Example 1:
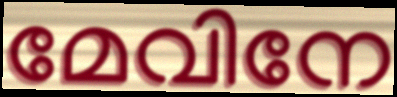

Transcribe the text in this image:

മേവിനേ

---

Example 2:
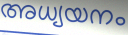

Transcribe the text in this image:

അധ്യയനം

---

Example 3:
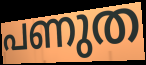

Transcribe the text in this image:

പണുത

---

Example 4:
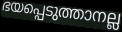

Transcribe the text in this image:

ഭയപ്പെടുത്താനല്ല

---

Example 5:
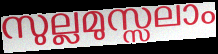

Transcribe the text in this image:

സുല്ലമുസ്സലാം